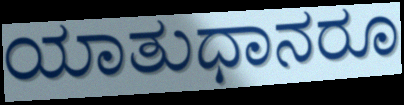
ಯಾತುಧಾನರೂ